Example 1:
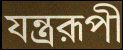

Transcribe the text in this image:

যন্ত্ররূপী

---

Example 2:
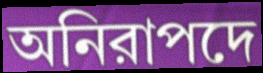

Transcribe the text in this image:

অনিরাপদে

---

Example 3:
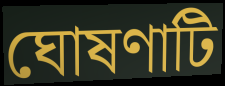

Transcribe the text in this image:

ঘোষণাটি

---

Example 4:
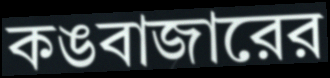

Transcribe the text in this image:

কঙবাজারের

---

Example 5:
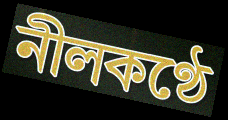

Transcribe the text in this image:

নীলকণ্ঠে